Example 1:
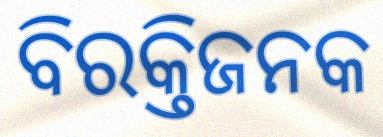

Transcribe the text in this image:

ବିରକ୍ତିଜନକ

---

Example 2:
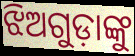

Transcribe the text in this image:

ଝିଅଗୁଡ଼ାଙ୍କୁ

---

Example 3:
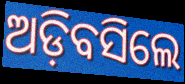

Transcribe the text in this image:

ଅଡ଼ିବସିଲେ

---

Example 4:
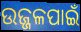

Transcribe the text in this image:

ଉଜ୍ଜଳପାଇଁ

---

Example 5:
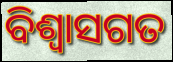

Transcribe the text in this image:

ବିଶ୍ଵାସଗତ